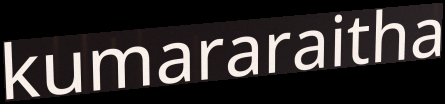
kumararaitha